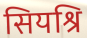
सियश्रि